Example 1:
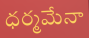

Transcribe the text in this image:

ధర్మమేనా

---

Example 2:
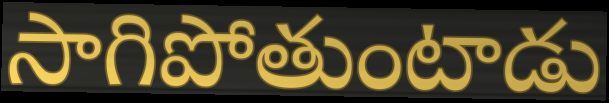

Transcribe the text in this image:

సాగిపోతుంటాడు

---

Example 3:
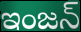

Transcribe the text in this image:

ఇంజన్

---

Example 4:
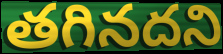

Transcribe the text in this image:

తగినదని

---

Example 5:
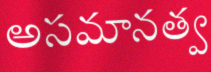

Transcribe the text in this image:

అసమానత్వ